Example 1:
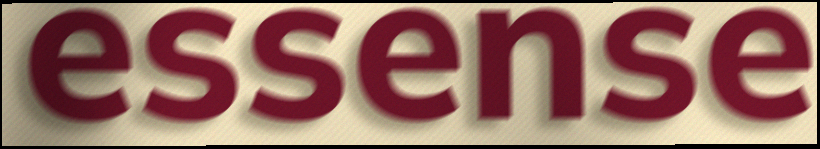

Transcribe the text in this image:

essense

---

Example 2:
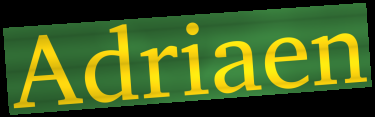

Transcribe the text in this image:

Adriaen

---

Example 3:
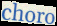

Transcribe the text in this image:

choro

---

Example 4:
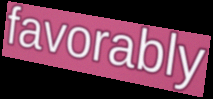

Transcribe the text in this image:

favorably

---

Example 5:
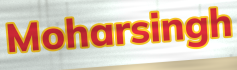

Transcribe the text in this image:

Moharsingh